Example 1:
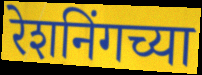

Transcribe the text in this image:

रेशनिंगच्या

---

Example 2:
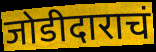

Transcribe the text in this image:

जोडीदाराचं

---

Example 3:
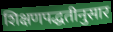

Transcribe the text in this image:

शिक्षणपद्धतीनुसार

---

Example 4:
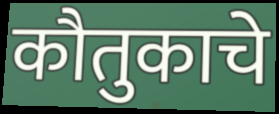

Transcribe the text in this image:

कौतुकाचे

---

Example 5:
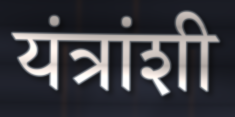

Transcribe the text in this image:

यंत्रांशी